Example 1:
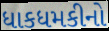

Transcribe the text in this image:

ધાકધમકીનો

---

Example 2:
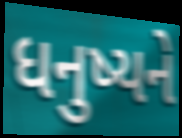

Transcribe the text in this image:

ધનુષ્યને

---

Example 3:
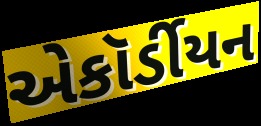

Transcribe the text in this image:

એકૉર્ડીયન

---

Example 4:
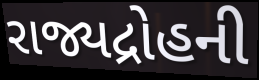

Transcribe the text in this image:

રાજ્યદ્રોહની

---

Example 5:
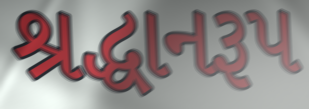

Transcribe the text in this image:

શ્રદ્ધાનરૂપ